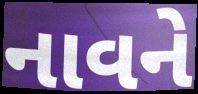
નાવને